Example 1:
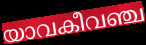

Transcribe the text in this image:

യാവകീവഞ്ച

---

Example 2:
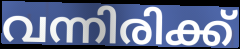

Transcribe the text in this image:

വന്നിരിക്ക്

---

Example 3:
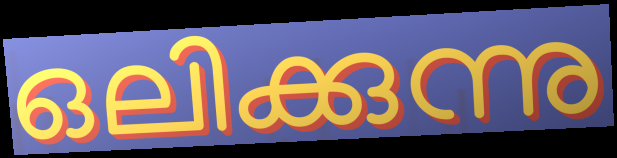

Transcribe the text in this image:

ഒലിക്കുന്നു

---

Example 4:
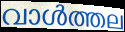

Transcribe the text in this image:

വാൾത്തല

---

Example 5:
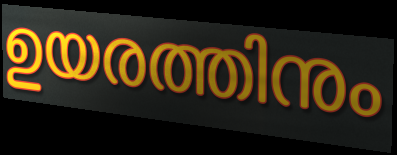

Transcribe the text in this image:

ഉയരത്തിനും